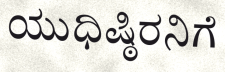
ಯುಧಿಷ್ಠಿರನಿಗೆ